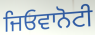
ਜਿਓਵਾਨੋਟੀ